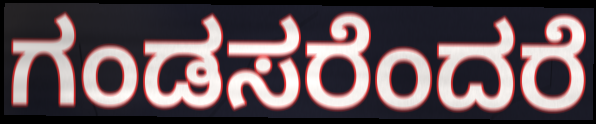
ಗಂಡಸರೆಂದರೆ